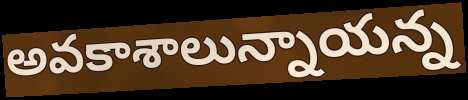
అవకాశాలున్నాయన్న